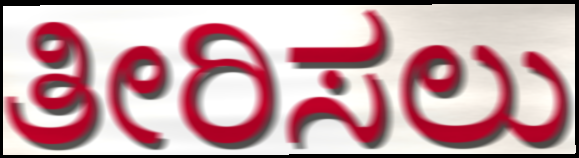
ತೀರಿಸಲು